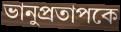
ভানুপ্রতাপকে